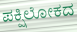
ಪಕ್ಷಿಲೋಕದ